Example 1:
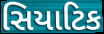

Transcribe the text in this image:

સિયાટિક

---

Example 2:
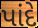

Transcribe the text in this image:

પાંદે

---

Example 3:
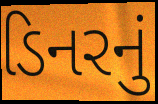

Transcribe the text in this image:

ડિનરનું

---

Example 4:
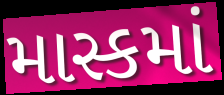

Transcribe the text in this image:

માસ્કમાં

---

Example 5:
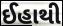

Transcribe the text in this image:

ઈહાથી